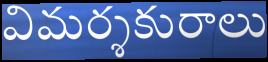
విమర్శకురాలు